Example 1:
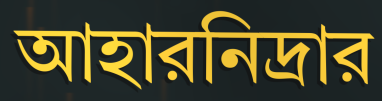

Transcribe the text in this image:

আহারনিদ্রার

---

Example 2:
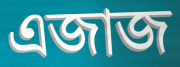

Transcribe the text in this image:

এজাজ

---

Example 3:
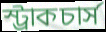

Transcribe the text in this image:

স্ট্রাকচার্স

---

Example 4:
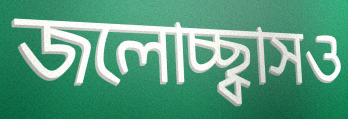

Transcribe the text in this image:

জলোচ্ছ্বাসও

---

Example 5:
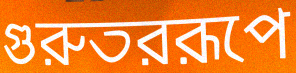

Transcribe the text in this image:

গুরুতররূপে